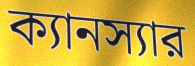
ক্যানস্যার